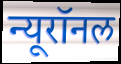
न्यूरॉनल